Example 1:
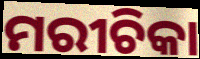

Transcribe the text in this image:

ମରୀଚିକା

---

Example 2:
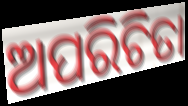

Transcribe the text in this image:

ଅପରିଚିତା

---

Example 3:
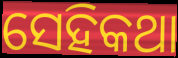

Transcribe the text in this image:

ସେହିକଥା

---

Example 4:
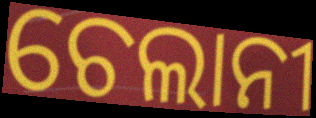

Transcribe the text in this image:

ଚେଲାନୀ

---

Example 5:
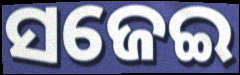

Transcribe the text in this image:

ସଜେଇ